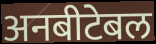
अनबीटेबल